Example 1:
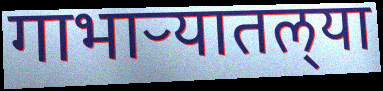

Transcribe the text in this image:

गाभाऱ्यातल्या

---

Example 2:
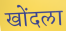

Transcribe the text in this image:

खोंदला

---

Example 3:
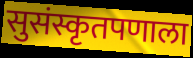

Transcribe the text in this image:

सुसंस्कृतपणाला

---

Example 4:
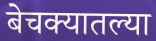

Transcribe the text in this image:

बेचक्यातल्या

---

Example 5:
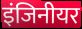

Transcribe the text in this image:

इंजिनीयर